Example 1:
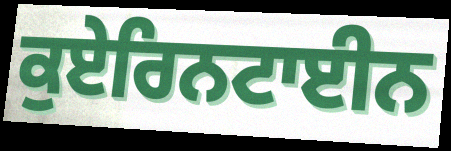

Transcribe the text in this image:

ਕੁਏਰਿਨਟਾਈਨ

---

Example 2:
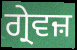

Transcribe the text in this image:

ਗ੍ਰੇਵਜ਼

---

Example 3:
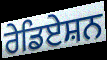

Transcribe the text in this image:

ਰੇਡਿਏਸ਼ਨ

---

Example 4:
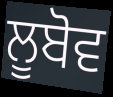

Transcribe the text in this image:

ਲੂਬੋਵ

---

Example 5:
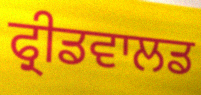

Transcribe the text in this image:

ਫ੍ਰੀਡਵਾਲਡ